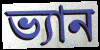
ভ্যান